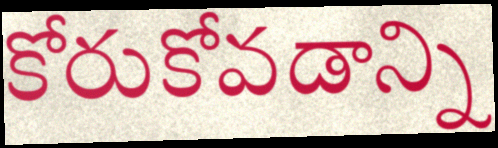
కోరుకోవడాన్ని